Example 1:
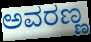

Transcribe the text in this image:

ಅವರಣ್ಣ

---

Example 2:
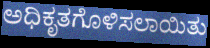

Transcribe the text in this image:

ಅಧಿಕೃತಗೊಳಿಸಲಾಯಿತು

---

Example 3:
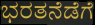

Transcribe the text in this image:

ಭರತನೆಡೆಗೆ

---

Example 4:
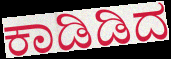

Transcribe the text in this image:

ಕಾಡಿಡಿದ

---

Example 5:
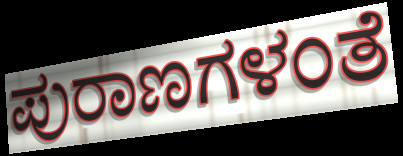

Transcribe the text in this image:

ಪುರಾಣಗಳಂತೆ